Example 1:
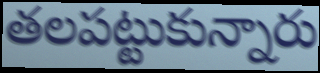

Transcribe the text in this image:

తలపట్టుకున్నారు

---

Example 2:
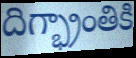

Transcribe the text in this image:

దిగ్భ్రాంతికి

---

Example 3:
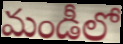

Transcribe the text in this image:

మండీలో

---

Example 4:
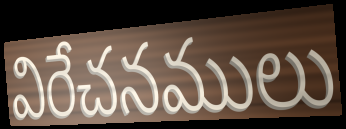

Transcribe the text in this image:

విరేచనములు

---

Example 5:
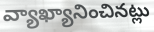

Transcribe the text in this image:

వ్యాఖ్యానించినట్లు